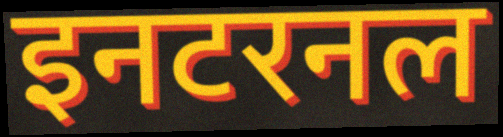
इनटरनल